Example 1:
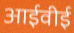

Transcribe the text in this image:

आईवीई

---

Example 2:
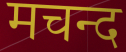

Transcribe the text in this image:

मचन्द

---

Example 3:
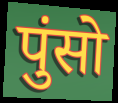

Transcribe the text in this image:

पुंसो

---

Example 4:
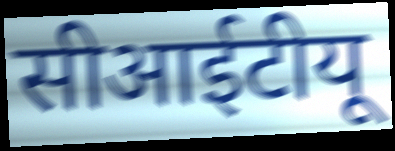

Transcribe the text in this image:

सीआईटीयू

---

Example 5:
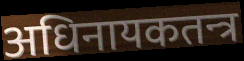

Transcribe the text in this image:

अधिनायकतन्त्र